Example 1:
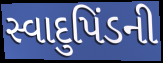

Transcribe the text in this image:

સ્વાદુપિંડની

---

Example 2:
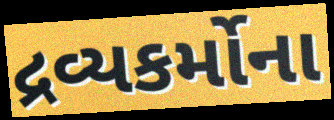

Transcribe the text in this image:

દ્રવ્યકર્મોના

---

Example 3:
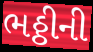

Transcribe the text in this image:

ભઠ્ઠીની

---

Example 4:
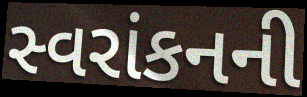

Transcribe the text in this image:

સ્વરાંકનની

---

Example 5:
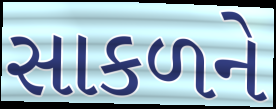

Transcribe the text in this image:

સાકળને